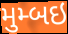
મુમ્બઇ